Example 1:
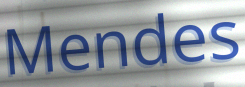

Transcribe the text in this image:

Mendes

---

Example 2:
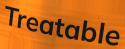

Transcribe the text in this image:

Treatable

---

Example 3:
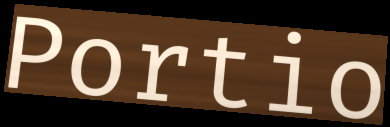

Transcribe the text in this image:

Portio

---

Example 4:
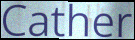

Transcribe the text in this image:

Cather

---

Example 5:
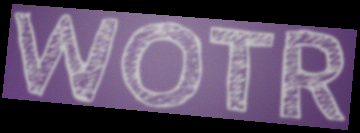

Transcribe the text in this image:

WOTR